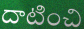
దాటించి